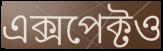
এক্সপেক্টও